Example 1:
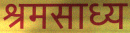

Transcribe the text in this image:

श्रमसाध्य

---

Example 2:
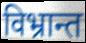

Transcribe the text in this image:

विभ्रान्त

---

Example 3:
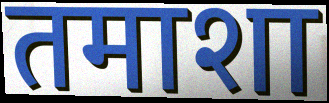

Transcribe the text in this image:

तमाशा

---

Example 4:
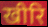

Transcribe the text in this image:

खीरि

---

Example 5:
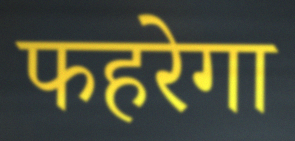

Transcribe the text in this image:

फहरेगा